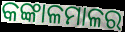
କଙ୍କାଳମାଳର